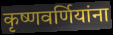
कृष्णवर्णियांना